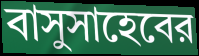
বাসুসাহেবের